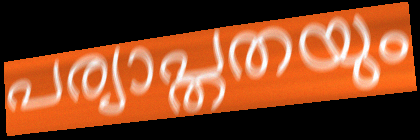
പര്യാപ്തതയും